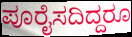
ಪೂರೈಸದಿದ್ದರೂ